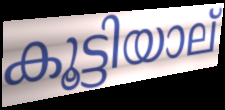
കൂട്ടിയാല്